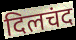
दिलचंद